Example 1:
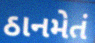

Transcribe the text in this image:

ઠાનમેતં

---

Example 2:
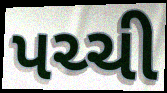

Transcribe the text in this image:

પચ્ચી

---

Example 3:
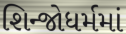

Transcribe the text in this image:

શિન્જોધર્મમાં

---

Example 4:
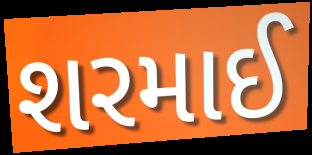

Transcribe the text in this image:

શરમાઈ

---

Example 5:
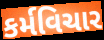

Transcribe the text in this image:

કર્મવિચાર